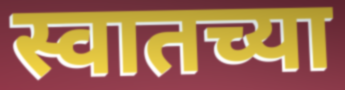
स्वातच्या